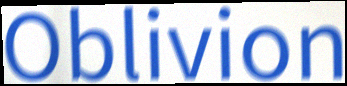
Oblivion